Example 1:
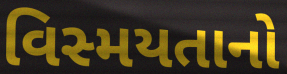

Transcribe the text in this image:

વિસ્મયતાનો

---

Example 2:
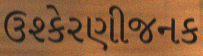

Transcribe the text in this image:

ઉશ્કેરણીજનક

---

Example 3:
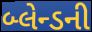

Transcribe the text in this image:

બ્લેન્ડની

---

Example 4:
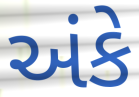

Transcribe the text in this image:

અંકે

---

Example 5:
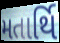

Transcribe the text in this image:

મતાર્થિ